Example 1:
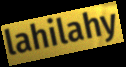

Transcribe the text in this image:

lahilahy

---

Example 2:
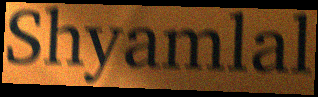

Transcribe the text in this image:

Shyamlal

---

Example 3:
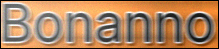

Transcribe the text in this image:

Bonanno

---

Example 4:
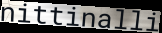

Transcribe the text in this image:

nittinalli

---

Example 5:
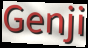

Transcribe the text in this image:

Genji